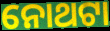
ନୋଥଟା